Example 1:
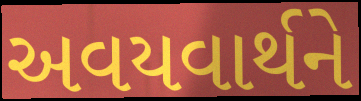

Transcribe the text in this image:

અવયવાર્થને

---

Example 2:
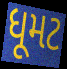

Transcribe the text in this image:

ધૂમટ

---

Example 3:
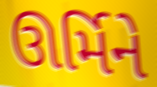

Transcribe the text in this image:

ઊર્મિને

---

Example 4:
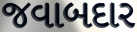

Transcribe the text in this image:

જવાબદાર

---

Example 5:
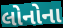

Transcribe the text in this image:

લોનોના